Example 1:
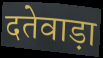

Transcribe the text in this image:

दतेवाड़ा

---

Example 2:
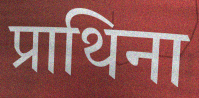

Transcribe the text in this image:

प्राथिना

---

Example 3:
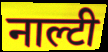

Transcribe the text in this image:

नाल्टी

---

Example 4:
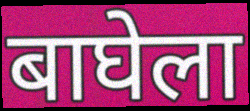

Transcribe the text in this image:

बाघेला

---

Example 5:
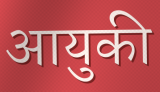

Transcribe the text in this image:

आयुकी